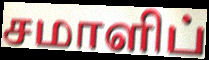
சமாளிப்